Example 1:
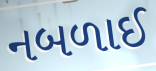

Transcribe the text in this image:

નબળાઈ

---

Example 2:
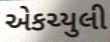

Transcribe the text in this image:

એકચ્યુલી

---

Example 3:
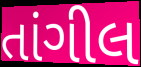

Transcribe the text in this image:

તાંગીલ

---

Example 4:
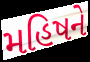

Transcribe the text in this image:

મહિષને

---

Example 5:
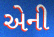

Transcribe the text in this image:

એની